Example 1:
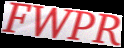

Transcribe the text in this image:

FWPR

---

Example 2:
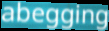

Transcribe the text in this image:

abegging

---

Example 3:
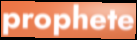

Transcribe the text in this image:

prophete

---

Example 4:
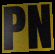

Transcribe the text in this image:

PN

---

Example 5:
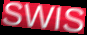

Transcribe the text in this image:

SWIS